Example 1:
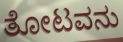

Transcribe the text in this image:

ತೋಟವನು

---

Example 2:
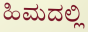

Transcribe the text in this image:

ಹಿಮದಲ್ಲಿ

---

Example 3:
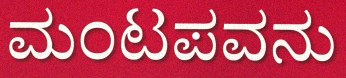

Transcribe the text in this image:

ಮಂಟಪವನು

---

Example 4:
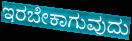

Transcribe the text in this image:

ಇರಬೇಕಾಗುವುದು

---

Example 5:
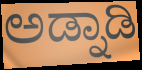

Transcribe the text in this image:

ಅಡ್ನಾಡಿ